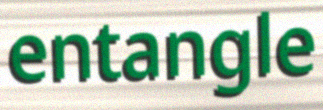
entangle